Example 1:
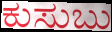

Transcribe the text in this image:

ಕುಸುಬು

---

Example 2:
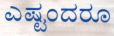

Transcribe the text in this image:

ಎಷ್ಟಂದರೂ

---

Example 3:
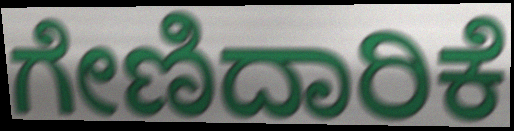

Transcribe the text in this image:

ಗೇಣಿದಾರಿಕೆ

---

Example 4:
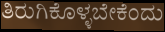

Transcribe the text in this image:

ತಿರುಗಿಕೊಳ್ಳಬೇಕೆಂದು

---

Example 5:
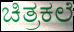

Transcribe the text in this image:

ಚಿತ್ರಕಲೆ